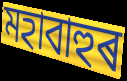
মহাবাহুৰ